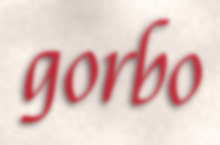
gorbo